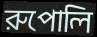
রুপোলি